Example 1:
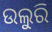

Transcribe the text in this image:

ଉଲୁରି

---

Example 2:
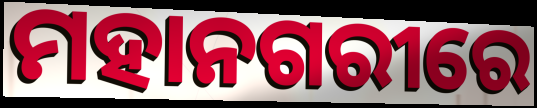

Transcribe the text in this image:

ମହାନଗରୀରେ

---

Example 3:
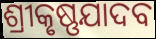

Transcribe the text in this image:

ଶ୍ରୀକୃଷ୍ଣଯାଦବ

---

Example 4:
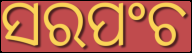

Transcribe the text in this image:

ସରପଂଚ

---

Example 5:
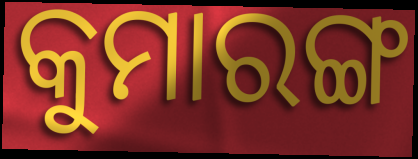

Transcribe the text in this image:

କୁମାରଙ୍ଗ